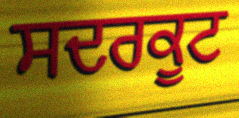
ਸਦਰਕੂਟ